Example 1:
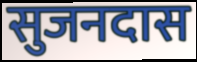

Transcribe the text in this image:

सुजनदास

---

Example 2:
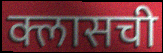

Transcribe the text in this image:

क्लासची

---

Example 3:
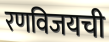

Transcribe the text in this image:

रणविजयची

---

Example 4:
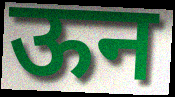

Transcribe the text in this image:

ऊन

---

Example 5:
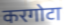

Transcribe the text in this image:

करगोटा